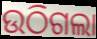
ଉଠିଗଲା